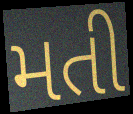
મતી